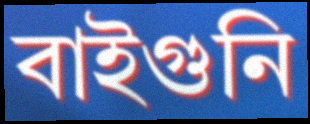
বাইগুনি